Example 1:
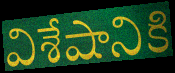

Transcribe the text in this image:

విశేషానికి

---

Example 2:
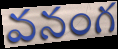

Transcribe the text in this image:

వనంగ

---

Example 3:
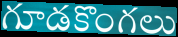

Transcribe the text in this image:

గూడకొంగలు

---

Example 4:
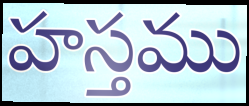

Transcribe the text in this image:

హస్తము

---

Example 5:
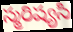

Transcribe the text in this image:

స్మరిష్యసి